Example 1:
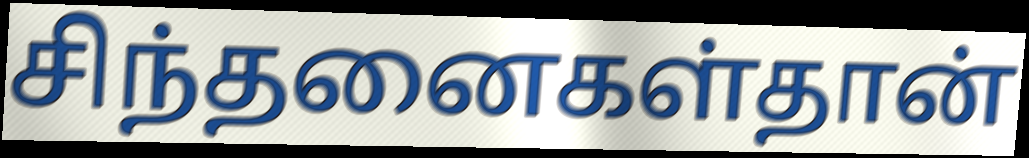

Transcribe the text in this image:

சிந்தனைகள்தான்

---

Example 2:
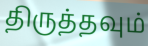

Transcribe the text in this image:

திருத்தவும்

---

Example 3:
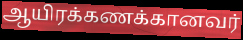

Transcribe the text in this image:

ஆயிரக்கணக்கானவர்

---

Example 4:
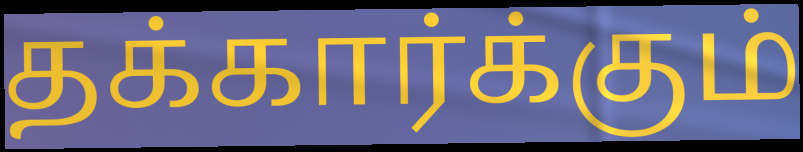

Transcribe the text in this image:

தக்கார்க்கும்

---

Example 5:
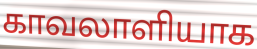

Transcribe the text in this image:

காவலாளியாக